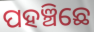
ପହଞ୍ଚିଛେ